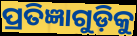
ପ୍ରତିଜ୍ଞାଗୁଡ଼ିକୁ